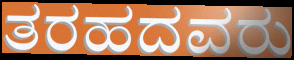
ತರಹದವರು